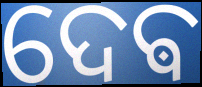
ଦେଵ